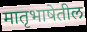
मातृभाषेतील